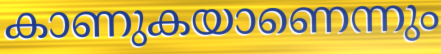
കാണുകയാണെന്നും